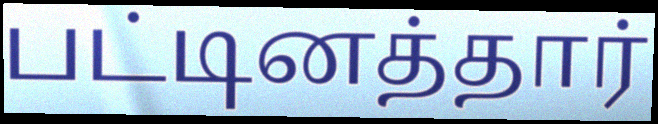
பட்டினத்தார்